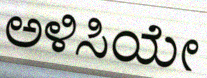
ಅಳಿಸಿಯೇ